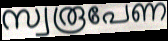
സ്വരൂപേണ